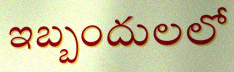
ఇబ్బందులలో